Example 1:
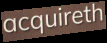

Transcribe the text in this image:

acquireth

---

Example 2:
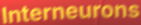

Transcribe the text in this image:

Interneurons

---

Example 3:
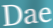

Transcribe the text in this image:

Dae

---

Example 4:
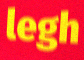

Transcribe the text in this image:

legh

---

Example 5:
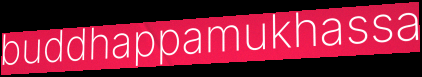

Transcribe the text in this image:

buddhappamukhassa